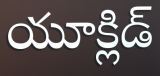
యూక్లిడ్